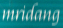
mridang